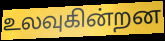
உலவுகின்றன